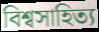
বিশ্বসাহিত্য